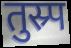
तुस्र्प